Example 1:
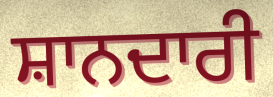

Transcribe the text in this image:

ਸ਼ਾਨਦਾਰੀ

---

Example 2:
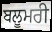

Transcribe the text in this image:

ਬਲੂਮਰੀ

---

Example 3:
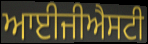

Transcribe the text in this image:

ਆਈਜੀਐਸਟੀ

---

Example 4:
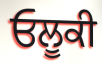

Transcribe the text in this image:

ਓਲੂਕੀ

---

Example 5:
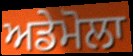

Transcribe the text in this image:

ਅਡੇਮੋਲਾ